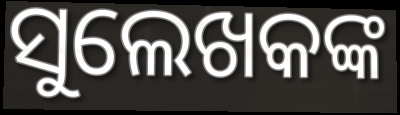
ସୁଲେଖକଙ୍କ